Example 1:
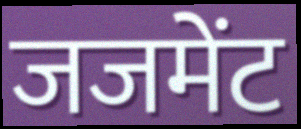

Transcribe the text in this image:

जजमेंट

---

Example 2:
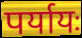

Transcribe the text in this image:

पर्यायः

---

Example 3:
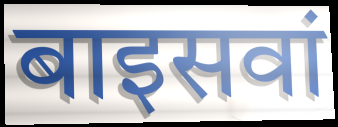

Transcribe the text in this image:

बाइसवां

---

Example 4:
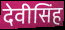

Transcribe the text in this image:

देवीसिंह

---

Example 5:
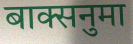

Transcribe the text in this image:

बाक्सनुमा